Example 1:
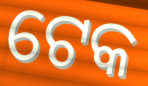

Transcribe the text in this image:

ଟେକ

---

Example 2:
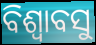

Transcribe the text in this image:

ବିଶ୍ୱାବସୁ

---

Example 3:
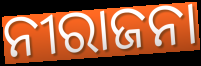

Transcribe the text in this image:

ନୀରାଜନା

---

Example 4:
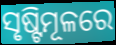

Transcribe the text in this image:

ସୃଷ୍ଟିମୂଳରେ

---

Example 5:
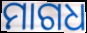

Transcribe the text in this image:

ମାଗଧ